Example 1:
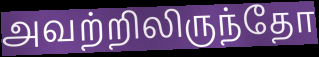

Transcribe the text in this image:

அவற்றிலிருந்தோ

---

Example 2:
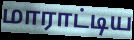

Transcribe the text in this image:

மாராட்டிய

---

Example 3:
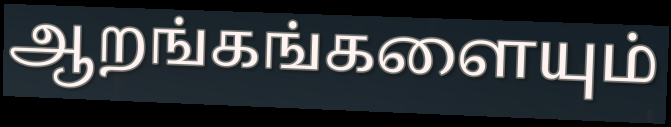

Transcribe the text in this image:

ஆறங்கங்களையும்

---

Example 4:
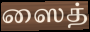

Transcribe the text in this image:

ஸைத்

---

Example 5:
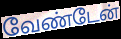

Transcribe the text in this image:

வேண்டேன்